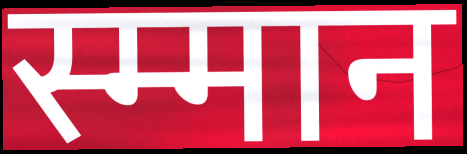
स्म्मान